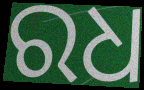
ରଧ